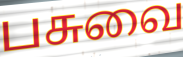
பசுவை